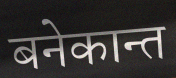
बनेकान्त